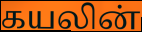
கயலின்